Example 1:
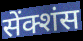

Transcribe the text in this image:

सेंक्शंस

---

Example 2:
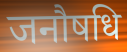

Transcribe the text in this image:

जनौषधि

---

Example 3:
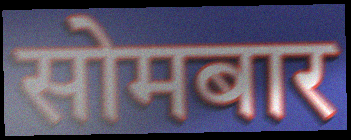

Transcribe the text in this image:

सोमबार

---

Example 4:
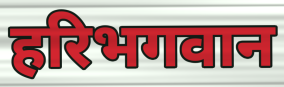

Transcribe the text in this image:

हरिभगवान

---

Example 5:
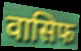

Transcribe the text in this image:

वासिफ